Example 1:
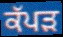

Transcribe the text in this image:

ਕੱਪੜ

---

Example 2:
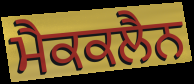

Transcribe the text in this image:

ਮੈਕਕਲੈਨ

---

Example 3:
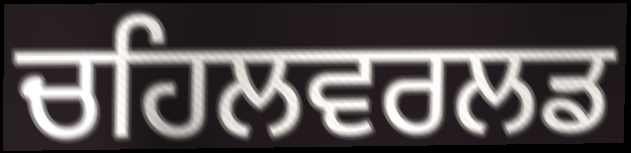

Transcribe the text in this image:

ਚਹਿਲਵਰਲਡ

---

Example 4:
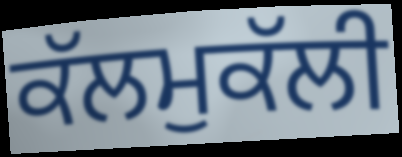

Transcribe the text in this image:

ਕੱਲਮੁਕੱਲੀ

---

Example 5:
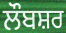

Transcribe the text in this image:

ਲੌਬਸ਼ਰ